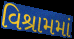
વિશ્રામમાં